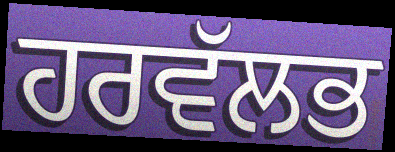
ਹਰਵੱਲਭ